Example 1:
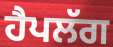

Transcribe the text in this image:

ਹੈਪਲੱਗ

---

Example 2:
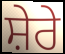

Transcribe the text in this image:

ਸ਼ੇਰੇ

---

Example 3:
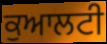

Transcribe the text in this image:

ਕੁਆਲਟੀ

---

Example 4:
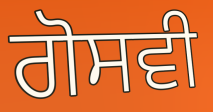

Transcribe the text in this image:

ਗੋਸਵੀ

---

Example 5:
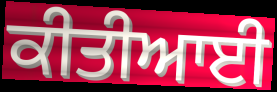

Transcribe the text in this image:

ਕੀਤੀਆਈ